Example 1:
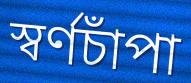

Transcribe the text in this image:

স্বর্ণচাঁপা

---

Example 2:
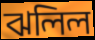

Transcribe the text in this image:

ঝলিল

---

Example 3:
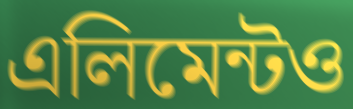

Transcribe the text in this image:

এলিমেন্টও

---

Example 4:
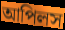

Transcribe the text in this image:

আপিলস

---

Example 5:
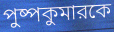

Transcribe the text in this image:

পুষ্পকুমারকে